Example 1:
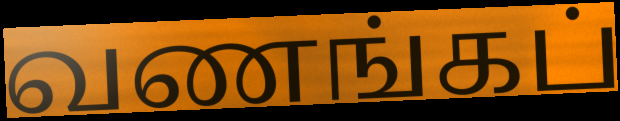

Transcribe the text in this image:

வணங்கப்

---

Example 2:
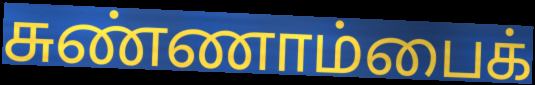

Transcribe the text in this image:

சுண்ணாம்பைக்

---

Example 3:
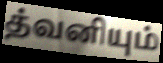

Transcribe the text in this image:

த்வனியும்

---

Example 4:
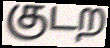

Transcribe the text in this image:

குடற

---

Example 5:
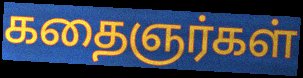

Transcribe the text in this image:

கதைஞர்கள்